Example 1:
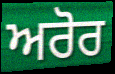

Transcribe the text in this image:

ਅਰੋਰ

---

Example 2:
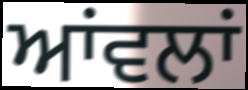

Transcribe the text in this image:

ਆਂਵਲਾਂ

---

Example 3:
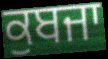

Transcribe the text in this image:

ਕੁਬਜਾ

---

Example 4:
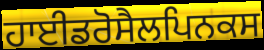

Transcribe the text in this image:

ਹਾਈਡਰੋਸੈਲਪਿਨਕਸ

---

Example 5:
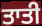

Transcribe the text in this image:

ਤਾਤੀ